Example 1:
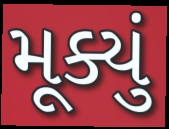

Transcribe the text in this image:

મૂક્યું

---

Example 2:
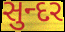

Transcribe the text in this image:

સુન્દર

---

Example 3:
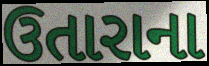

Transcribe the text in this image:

ઉતારાના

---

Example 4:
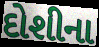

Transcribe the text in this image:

દોશીના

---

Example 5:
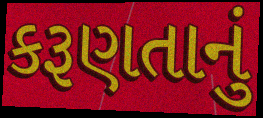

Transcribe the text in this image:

કરૂણતાનું